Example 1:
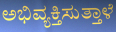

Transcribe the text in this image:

ಅಭಿವ್ಯಕ್ತಿಸುತ್ತಾಳೆ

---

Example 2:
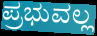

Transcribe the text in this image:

ಪ್ರಭುವಲ್ಲ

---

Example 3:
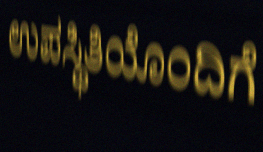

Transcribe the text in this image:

ಉಪಸ್ಥಿತಿಯೊಂದಿಗೆ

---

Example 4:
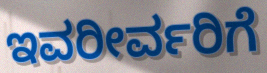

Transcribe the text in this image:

ಇವರೀರ್ವರಿಗೆ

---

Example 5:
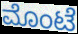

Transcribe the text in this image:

ಮೊಂಟೆ